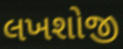
લખશોજી